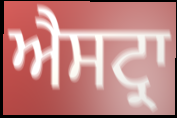
ਐਸਟ੍ਰਾ